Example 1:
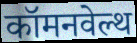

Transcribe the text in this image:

कॉमनवेल्थ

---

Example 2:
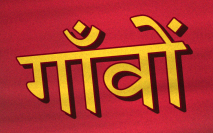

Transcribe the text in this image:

गाँवों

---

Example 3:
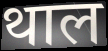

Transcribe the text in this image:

थाल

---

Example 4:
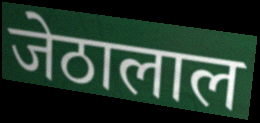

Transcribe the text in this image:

जेठालाल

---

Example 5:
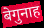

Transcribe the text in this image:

बेगुनाह